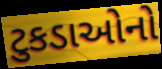
ટુકડાઓનો